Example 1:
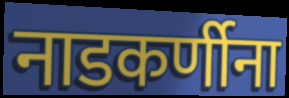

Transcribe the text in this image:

नाडकर्णीना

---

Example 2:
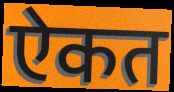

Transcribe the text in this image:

ऐकत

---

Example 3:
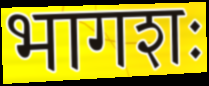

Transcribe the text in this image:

भागशः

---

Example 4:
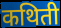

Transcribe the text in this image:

कथिती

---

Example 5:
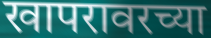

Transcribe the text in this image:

खापरावरच्या